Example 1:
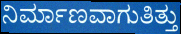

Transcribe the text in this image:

ನಿರ್ಮಾಣವಾಗುತಿತ್ತು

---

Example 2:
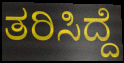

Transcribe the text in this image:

ತರಿಸಿದ್ದೆ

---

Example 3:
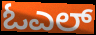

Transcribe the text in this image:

ಓಎಲ್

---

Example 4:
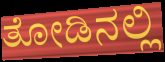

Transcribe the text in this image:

ತೋಡಿನಲ್ಲಿ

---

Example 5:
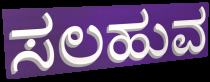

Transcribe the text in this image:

ಸಲಹುವ